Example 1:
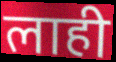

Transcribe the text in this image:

लाही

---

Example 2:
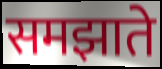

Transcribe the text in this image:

समझाते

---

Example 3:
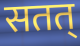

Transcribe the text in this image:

सतत्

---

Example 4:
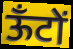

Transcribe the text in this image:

ऊँटों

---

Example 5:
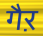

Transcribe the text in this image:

गैऱ